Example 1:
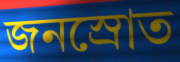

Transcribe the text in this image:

জনস্রোত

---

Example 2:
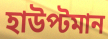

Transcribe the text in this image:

হাউপ্টমান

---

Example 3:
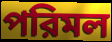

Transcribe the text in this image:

পরিমল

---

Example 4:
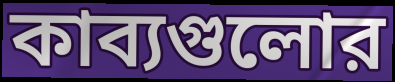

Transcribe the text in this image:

কাব্যগুলোর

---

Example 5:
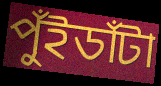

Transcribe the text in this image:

পুঁইডাঁটা